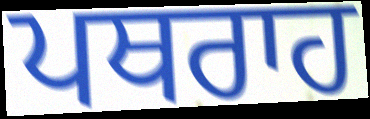
ਪਥਰਾਹ